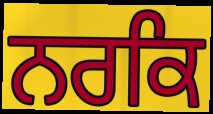
ਨਰਕਿ